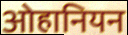
ओहानियन